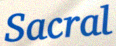
Sacral